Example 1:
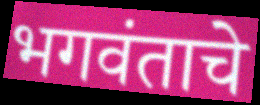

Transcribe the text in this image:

भगवंताचे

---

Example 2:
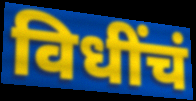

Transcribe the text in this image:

विधींचं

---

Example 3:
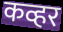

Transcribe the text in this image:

कव्हर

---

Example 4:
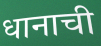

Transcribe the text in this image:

धानाची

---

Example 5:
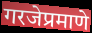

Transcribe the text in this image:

गरजेप्रमाणे